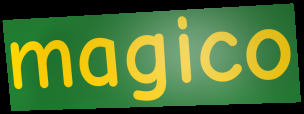
magico